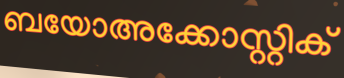
ബയോഅക്കോസ്റ്റിക്